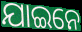
ଯାଇନେ